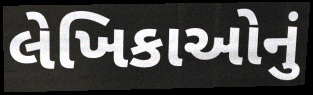
લેખિકાઓનું